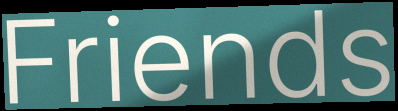
Friends